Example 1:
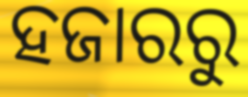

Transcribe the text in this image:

ହଜାରରୁ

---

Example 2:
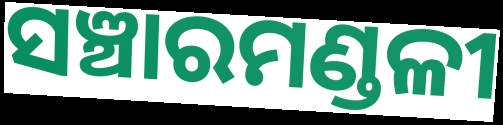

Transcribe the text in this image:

ସଞ୍ଚାରମଣ୍ଡଳୀ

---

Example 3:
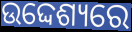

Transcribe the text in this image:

ଉଦ୍ଦେଶ୍ୟରେ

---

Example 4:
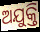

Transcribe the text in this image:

ଅଯୁକ୍ତି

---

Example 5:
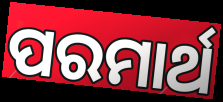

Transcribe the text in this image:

ପରମାର୍ଥ